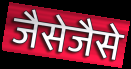
जैसेजैसे